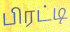
பிரட்டி